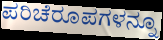
ಪರಿಚೆರೂಪಗಳನ್ನೂ